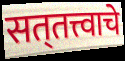
सत्‌तत्त्वाचे